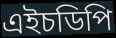
এইচডিপি